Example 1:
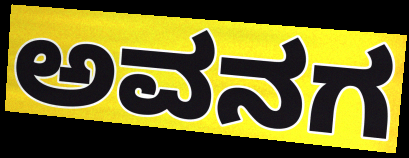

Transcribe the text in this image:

ಅವನಗ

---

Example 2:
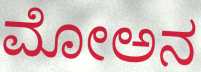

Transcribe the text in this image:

ಮೋಅನ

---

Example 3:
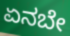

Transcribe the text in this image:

ಏನಬೇ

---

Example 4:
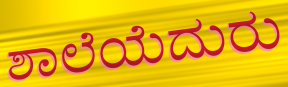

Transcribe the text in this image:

ಶಾಲೆಯೆದುರು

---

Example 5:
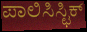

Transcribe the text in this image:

ಪಾಲಿಸಿಸ್ಟಿಕ್